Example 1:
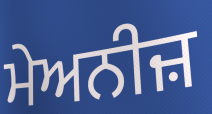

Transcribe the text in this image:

ਮੇਅਨੀਜ਼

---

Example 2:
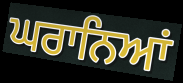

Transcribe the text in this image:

ਘਰਾਨਿਆਂ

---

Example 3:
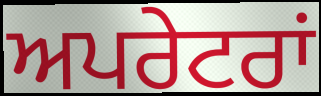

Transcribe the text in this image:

ਅਪਰੇਟਰਾਂ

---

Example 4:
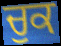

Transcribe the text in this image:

ਚੁਕ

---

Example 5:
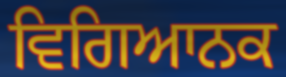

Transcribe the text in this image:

ਵਿਗਿਆਨਕ